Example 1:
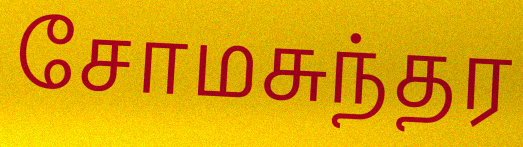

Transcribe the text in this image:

சோமசுந்தர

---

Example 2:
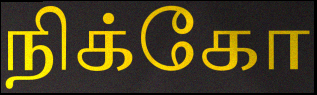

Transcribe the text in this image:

நிக்கோ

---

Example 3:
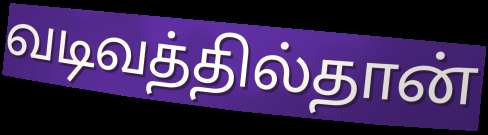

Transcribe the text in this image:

வடிவத்தில்தான்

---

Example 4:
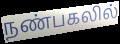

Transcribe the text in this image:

நண்பகலில்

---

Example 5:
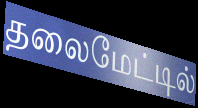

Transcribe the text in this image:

தலைமேட்டில்